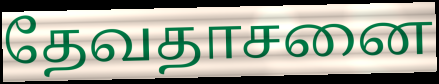
தேவதாசனை